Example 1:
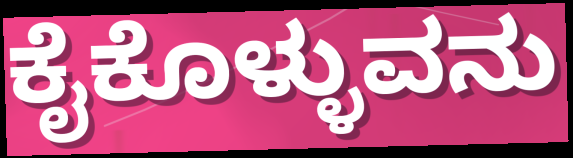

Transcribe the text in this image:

ಕೈಕೊಳ್ಳುವನು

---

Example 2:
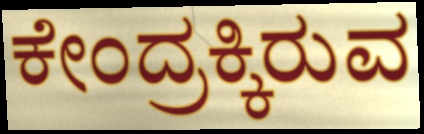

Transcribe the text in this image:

ಕೇಂದ್ರಕ್ಕಿರುವ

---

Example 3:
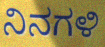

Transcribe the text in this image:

ನಿನಗಳಿ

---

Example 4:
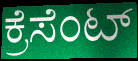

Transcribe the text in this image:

ಕ್ರೆಸೆಂಟ್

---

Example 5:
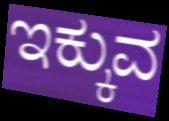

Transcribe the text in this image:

ಇಕ್ಕುವ